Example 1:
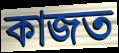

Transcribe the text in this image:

কাজত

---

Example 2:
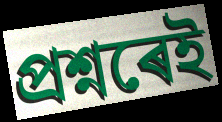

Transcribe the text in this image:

প্ৰশ্নৰেই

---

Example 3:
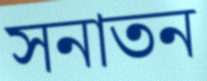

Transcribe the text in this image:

সনাতন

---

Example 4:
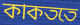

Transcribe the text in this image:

কাকততে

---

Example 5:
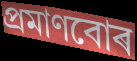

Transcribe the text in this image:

প্ৰমাণবোৰ